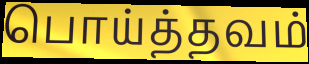
பொய்த்தவம்